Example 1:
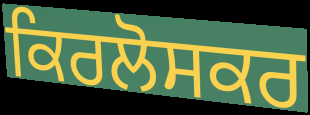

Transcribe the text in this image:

ਕਿਰਲੋਸਕਰ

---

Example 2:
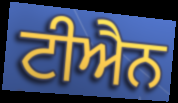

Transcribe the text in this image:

ਟੀਐਨ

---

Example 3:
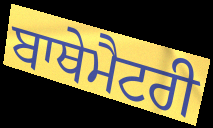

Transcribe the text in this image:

ਬਾਥੇਮੈਟਰੀ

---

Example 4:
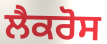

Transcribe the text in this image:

ਲੈਕਰੋਸ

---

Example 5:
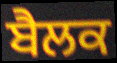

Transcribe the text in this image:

ਬੈਲਕ